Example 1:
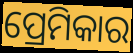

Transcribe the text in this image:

ପ୍ରେମିକାର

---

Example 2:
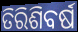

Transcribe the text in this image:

ତିରିଶିବର୍ଷ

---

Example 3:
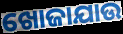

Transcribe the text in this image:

ଖୋଜାଯାଉ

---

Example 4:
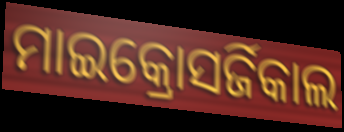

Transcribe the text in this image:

ମାଇକ୍ରୋସର୍ଜିକାଲ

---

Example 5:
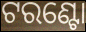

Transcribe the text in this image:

ଟରଣ୍ଟୋ